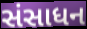
સંસાધન